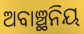
ଅବାଞ୍ଛନିୟ